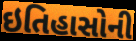
ઇતિહાસોની